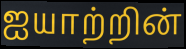
ஐயாற்றின்